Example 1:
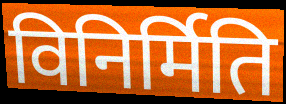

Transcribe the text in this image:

विनिर्मिति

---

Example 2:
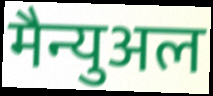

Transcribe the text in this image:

मैन्युअल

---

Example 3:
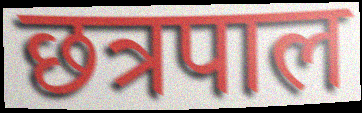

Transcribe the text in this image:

छत्रपाल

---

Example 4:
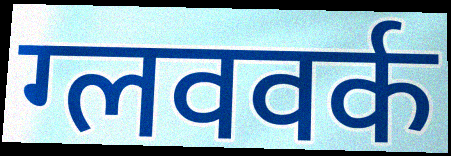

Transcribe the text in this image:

ग्लववर्क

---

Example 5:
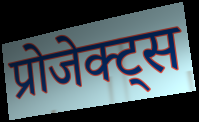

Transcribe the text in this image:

प्रोजेक्ट्स